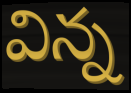
విన్న